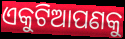
ଏକୁଟିଆପଣକୁ